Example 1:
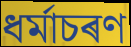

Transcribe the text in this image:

ধৰ্মাচৰণ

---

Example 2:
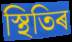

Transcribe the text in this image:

স্থিতিৰ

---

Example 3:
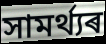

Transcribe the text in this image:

সামৰ্থ্যৰ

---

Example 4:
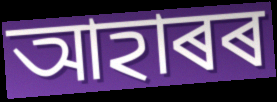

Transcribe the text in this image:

আহাৰৰ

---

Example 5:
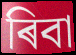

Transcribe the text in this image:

ৰিবা